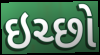
ઇચ્છો